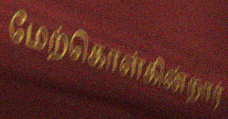
மேற்கொள்கின்றார்